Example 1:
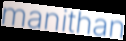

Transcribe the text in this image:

manithan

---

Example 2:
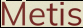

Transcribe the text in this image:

Metis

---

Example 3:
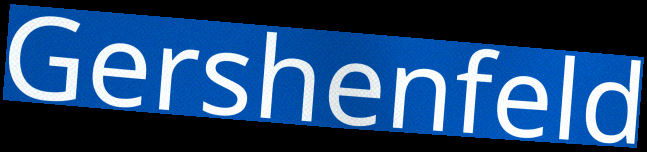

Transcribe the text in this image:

Gershenfeld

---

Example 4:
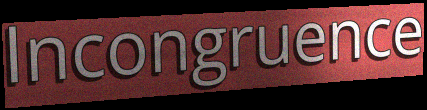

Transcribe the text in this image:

Incongruence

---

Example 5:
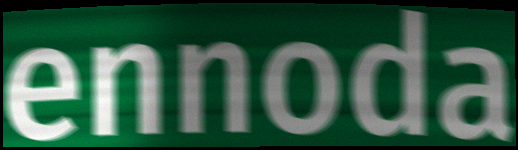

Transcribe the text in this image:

ennoda